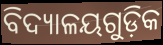
ବିଦ୍ୟାଳୟଗୁଡ଼ିକ